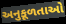
અનુકૂળતાઓ